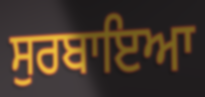
ਸੁਰਬਾਇਆ